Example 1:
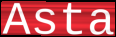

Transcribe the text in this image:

Asta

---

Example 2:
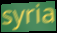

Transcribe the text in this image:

syria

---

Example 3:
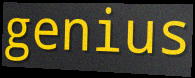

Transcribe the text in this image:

genius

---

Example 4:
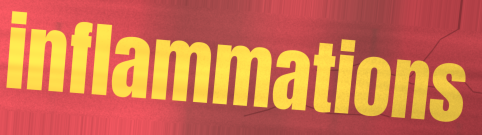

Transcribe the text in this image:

inflammations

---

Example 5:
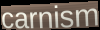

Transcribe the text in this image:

carnism